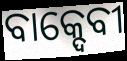
ବାକ୍ଦେବୀ